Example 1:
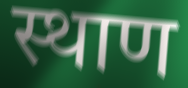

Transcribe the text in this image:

स्थाण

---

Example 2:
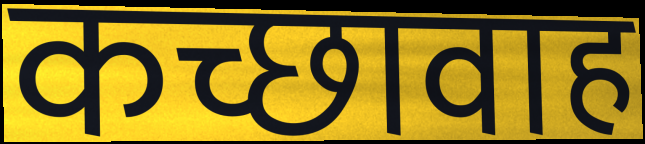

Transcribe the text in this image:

कच्छावाह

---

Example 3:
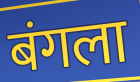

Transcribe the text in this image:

बंगला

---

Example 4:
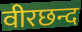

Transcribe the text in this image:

वीरछन्द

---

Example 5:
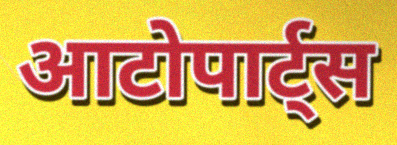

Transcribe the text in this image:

आटोपार्ट्स